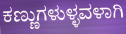
ಕಣ್ಣುಗಳುಳ್ಳವಳಾಗಿ